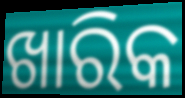
ଖାରିକ